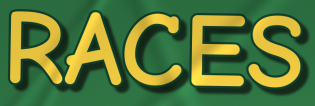
RACES